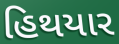
હિથયાર